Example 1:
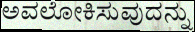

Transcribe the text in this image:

ಅವಲೋಕಿಸುವುದನ್ನು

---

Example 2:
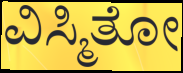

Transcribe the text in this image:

ವಿಸ್ಮಿತೋ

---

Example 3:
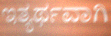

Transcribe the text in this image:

ಇತ್ಯರ್ಥವಾಗಿ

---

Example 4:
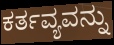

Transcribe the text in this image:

ಕರ್ತವ್ಯವನ್ನು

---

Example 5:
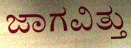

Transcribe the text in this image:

ಜಾಗವಿತ್ತು